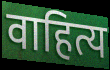
वाहित्य